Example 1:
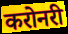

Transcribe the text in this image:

करोनरी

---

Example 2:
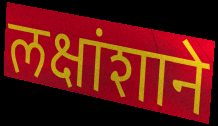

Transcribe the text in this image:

लक्षांशाने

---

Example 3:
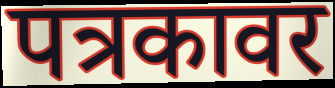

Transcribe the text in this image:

पत्रकावर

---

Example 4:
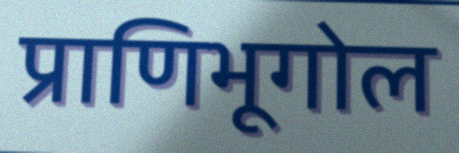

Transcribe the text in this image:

प्राणिभूगोल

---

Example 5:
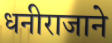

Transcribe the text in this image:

धनीराजाने